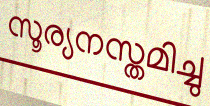
സൂര്യനസ്തമിച്ചു